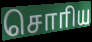
சொரிய